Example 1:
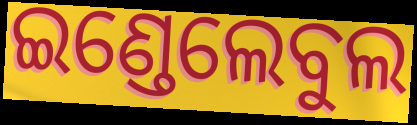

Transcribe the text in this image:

ଇଣ୍ଡେଲେବୁଲ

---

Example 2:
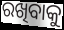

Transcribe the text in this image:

ରଖିବାକୁ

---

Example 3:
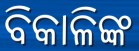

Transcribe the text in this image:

ବିକାଳିଙ୍କ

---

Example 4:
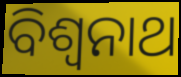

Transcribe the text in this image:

ବିଶ୍ୱନାଥ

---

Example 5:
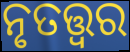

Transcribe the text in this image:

ନୃତତ୍ତ୍ଵର